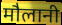
मौलानी